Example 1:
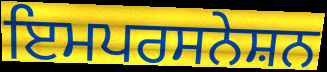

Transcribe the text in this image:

ਇਮਪਰਸਨੇਸ਼ਨ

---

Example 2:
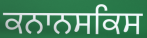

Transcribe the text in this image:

ਕਨਾਨਸਕਿਸ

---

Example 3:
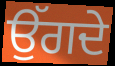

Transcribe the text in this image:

ਉੱਗਦੇ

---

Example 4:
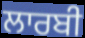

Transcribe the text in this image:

ਲਾਰਬੀ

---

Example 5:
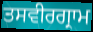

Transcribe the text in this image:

ਤਸਵੀਰਗ੍ਰਾਮ